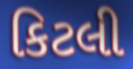
કિટલી